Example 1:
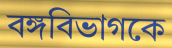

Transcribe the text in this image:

বঙ্গবিভাগকে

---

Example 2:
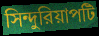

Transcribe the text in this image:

সিন্দুরিয়াপটি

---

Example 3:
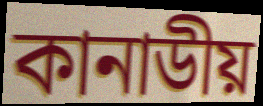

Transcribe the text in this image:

কানাডীয়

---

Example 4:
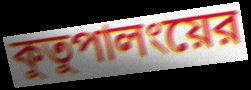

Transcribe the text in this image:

কুতুপালংয়ের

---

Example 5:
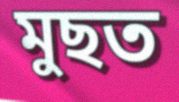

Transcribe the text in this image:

মুছত